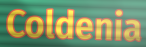
Coldenia